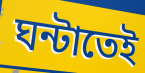
ঘন্টাতেই